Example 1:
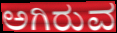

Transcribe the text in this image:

ಅಗಿರುವ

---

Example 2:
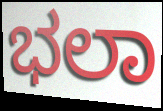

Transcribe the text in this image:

ಭಲಾ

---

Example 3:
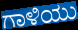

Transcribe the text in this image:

ಗಾಳಿಯು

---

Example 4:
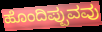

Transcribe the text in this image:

ಹೊಂದಿಪ್ಪುವವು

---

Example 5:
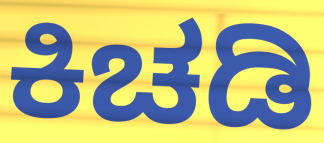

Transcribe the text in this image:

ಕಿಚಡಿ